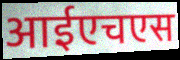
आईएचएस